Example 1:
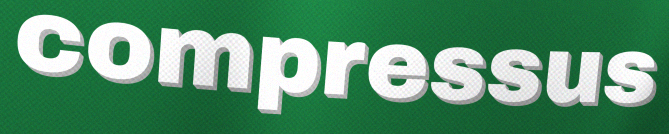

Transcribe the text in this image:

compressus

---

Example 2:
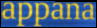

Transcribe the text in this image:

appana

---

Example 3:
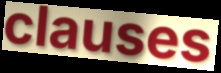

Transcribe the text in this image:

clauses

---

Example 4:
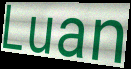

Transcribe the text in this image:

Luan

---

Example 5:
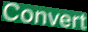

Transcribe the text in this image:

Convert